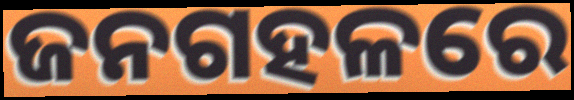
ଜନଗହଳରେ